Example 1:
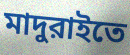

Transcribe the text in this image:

মাদুরাইতে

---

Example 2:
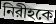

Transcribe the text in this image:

নিরীহকে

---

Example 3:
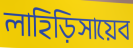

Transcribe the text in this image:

লাহিড়িসায়েব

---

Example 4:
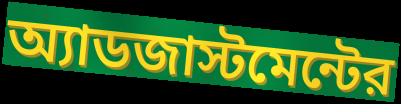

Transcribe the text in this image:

অ্যাডজাস্টমেন্টের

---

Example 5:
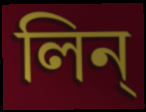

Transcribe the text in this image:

লিন্